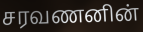
சரவணனின்